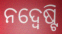
ନଦ୍ୱେଷ୍ଟି